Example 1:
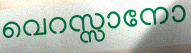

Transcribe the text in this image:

വെറസ്സാനോ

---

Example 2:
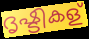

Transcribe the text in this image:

ദൃഷ്ടികള്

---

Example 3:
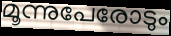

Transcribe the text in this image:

മൂന്നുപേരോടും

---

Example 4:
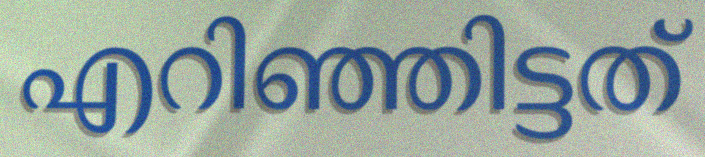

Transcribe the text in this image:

എറിഞ്ഞിട്ടത്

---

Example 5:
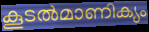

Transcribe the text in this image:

കൂടൽമാണിക്യം